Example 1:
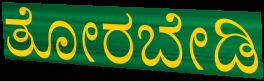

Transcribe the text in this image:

ತೋರಬೇಡಿ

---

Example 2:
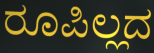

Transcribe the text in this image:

ರೂಪಿಲ್ಲದ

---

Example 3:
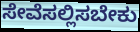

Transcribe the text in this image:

ಸೇವೆಸಲ್ಲಿಸಬೇಕು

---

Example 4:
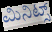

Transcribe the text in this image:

ಮಿನಿಟ್ಸ್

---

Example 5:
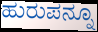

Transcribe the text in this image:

ಹುರುಪನ್ನೂ